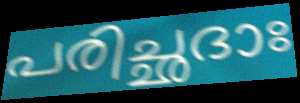
പരിച്ഛദാഃ